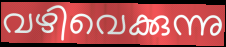
വഴിവെക്കുന്നു